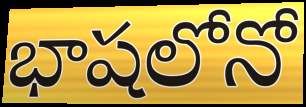
భాషలోనో